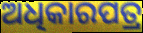
ଅଧିକାରପତ୍ର